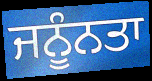
ਜਨੂੰਨਤਾ